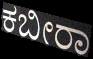
ಕಬೀರಾ